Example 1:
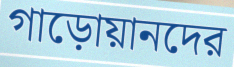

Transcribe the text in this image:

গাড়োয়ানদের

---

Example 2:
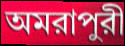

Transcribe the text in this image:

অমরাপুরী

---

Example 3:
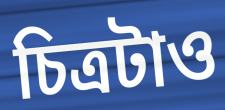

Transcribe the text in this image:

চিত্রটাও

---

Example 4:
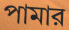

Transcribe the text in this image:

পামার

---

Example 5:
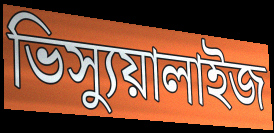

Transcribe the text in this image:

ভিস্যুয়ালাইজ